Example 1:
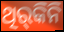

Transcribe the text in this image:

ଥିର୍‍କିନି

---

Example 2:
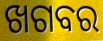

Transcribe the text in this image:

ଖଗବର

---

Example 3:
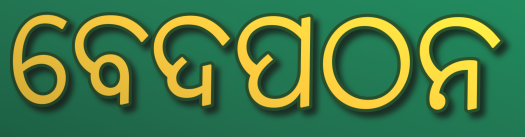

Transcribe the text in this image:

ବେଦପଠନ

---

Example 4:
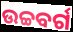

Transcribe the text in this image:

ଉଚ୍ଚବର୍ଗ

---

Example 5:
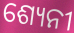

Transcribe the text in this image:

ଶ୍ୟେନୀ